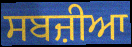
ਸਬਜ਼ੀਆ